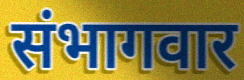
संभागवार